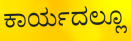
ಕಾರ್ಯದಲ್ಲೂ